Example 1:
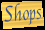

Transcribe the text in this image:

Shops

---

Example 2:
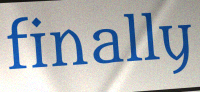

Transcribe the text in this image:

finally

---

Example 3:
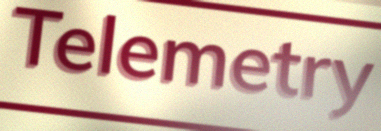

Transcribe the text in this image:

Telemetry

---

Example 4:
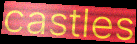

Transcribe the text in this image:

castles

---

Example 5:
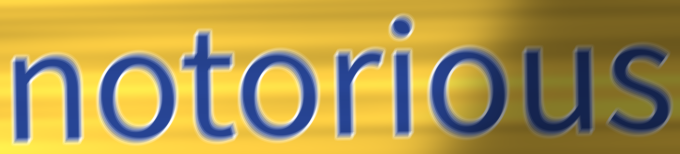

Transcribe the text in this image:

notorious